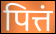
पित्तं